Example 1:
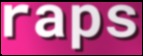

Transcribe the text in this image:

raps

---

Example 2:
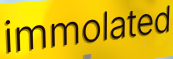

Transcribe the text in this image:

immolated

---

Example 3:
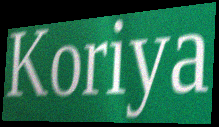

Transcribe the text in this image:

Koriya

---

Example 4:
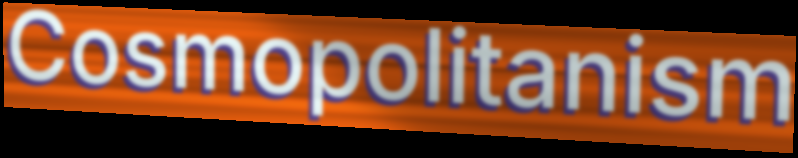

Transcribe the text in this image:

Cosmopolitanism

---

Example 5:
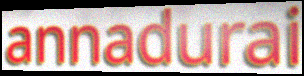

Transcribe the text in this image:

annadurai